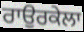
ਰਾਉਰਕੇਲਾ